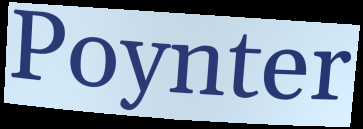
Poynter